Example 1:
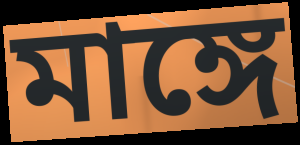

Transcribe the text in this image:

মাঙ্গে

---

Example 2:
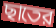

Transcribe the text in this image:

ছাতের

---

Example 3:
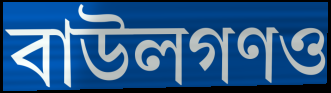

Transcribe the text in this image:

বাউলগণও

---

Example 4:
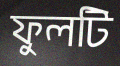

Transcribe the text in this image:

ফুলটি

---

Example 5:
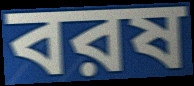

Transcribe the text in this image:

বরষ